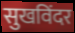
सुखविंदर